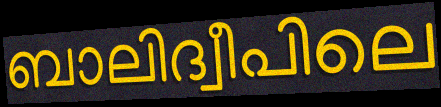
ബാലിദ്വീപിലെ